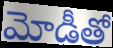
మోడీతో